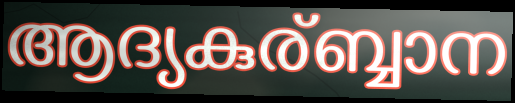
ആദ്യകുര്ബ്ബാന